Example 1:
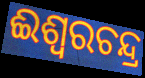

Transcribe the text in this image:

ଈଶ୍ୱରଚନ୍ଦ୍ର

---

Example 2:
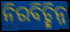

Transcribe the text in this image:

ନିରବିଚ୍ଛିନ୍ନ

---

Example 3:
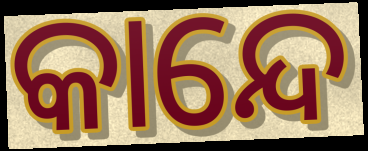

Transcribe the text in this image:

କାନ୍ଦେ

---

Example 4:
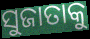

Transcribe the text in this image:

ସୁଜାତାକୁ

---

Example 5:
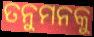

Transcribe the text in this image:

ତନୁମନକୁ